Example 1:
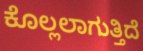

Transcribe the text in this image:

ಕೊಲ್ಲಲಾಗುತ್ತಿದೆ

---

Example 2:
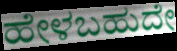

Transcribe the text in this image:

ಹೇಳಬಹುದೇ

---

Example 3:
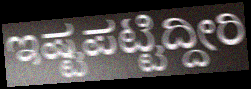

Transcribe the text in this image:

ಇಷ್ಟಪಟ್ಟಿದ್ದೀರಿ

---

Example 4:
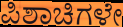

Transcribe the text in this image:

ಪಿಶಾಚಿಗಳೇ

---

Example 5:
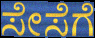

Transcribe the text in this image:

ಸೇಸೆಗೆ